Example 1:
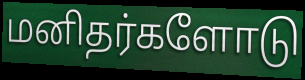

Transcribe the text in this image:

மனிதர்களோடு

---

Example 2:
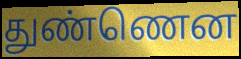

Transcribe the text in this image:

துண்ணென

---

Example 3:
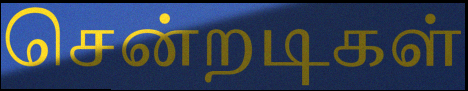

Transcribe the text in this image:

சென்றடிகள்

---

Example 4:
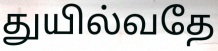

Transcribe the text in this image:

துயில்வதே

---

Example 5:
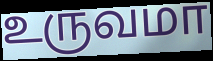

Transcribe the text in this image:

உருவமா